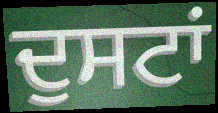
ਦੁਸਟਾਂ